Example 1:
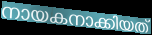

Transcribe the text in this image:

നായകനാക്കിയത്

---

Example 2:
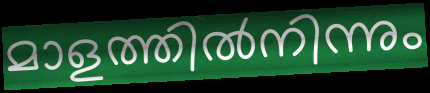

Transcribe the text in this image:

മാളത്തിൽനിന്നും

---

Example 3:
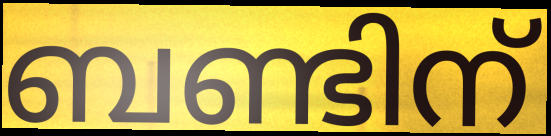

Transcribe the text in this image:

ബണ്ടിന്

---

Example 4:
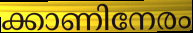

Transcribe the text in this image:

ക്കാണിനേരം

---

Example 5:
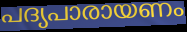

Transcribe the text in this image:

പദ്യപാരായണം